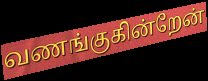
வணங்குகின்றேன்